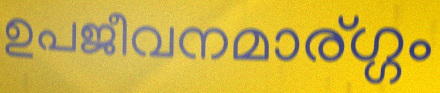
ഉപജീവനമാര്ഗ്ഗം